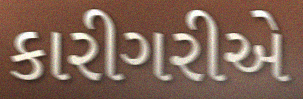
કારીગરીએ